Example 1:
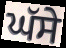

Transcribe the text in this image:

ਘੱਸੇ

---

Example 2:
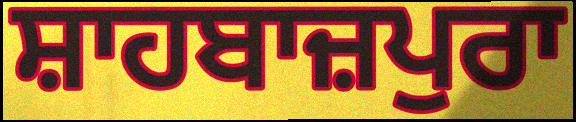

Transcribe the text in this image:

ਸ਼ਾਹਬਾਜ਼ਪੁਰਾ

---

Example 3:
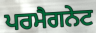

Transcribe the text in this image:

ਪਰਮੈਗਨੇਟ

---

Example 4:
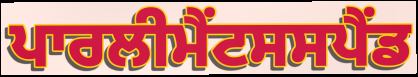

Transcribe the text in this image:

ਪਾਰਲੀਮੈਂਟਸਸਪੈਂਡ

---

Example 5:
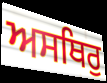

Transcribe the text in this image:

ਅਸਥਿਰੁ